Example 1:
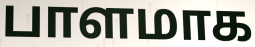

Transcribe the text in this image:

பாளமாக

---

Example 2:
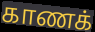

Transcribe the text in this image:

காணக்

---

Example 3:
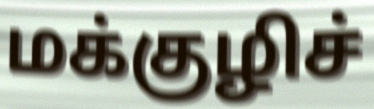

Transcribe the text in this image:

மக்குழிச்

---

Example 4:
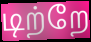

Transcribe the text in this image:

டிற்றே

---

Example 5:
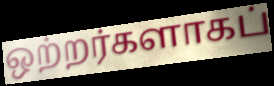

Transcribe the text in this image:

ஒற்றர்களாகப்